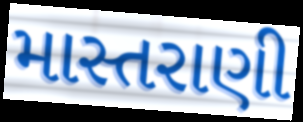
માસ્તરાણી